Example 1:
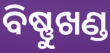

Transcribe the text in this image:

ବିଷ୍ଣୁଖଣ୍ଡ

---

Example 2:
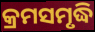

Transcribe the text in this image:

କ୍ରମସମୃଦ୍ଧି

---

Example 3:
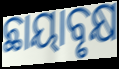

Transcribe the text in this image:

ଛାୟାବୃକ୍ଷ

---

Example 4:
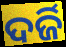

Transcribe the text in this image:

ଦର୍ଜି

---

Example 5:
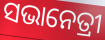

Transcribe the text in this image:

ସଭାନେତ୍ରୀ